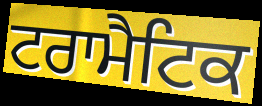
ਟਰਾਮੈਟਿਕ